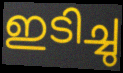
ഇടിച്ചു